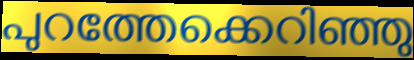
പുറത്തേക്കെറിഞ്ഞു